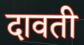
दावती